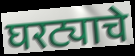
घरट्याचे